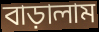
বাড়ালাম